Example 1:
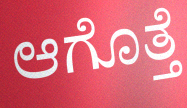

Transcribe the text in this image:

ಆಗೊತ್ತೆ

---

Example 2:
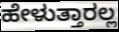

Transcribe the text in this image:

ಹೇಳುತ್ತಾರಲ್ಲ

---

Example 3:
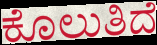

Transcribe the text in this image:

ಕೊಲುತಿದೆ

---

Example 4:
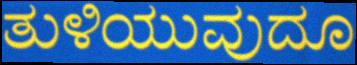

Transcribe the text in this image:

ತುಳಿಯುವುದೂ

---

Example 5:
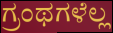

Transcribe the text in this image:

ಗ್ರಂಥಗಳೆಲ್ಲ